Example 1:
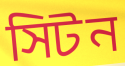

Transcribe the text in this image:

সিটন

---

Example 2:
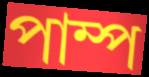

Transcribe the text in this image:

পাম্প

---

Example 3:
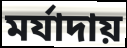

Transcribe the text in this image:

মর্যাদায়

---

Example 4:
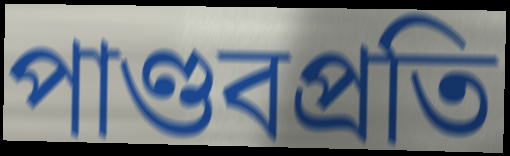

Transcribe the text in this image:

পাণ্ডবপ্রতি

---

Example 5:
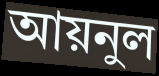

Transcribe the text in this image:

আয়নুল